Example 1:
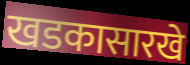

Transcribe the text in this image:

खडकासारखे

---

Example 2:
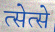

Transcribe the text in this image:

त्सेत्से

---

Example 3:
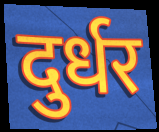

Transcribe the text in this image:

दुर्धर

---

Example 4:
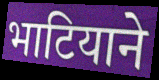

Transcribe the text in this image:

भाटियाने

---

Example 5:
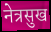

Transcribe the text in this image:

नेत्रसुख